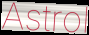
Astrol